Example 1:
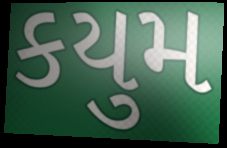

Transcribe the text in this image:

કયુમ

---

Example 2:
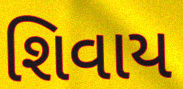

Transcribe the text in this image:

શિવાય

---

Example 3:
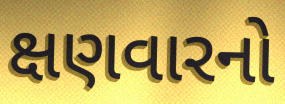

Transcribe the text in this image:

ક્ષણવારનો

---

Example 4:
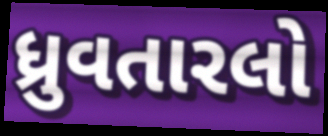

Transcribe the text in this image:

ધ્રુવતારલો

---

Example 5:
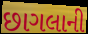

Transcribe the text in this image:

છાગલાની